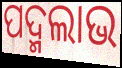
ପଦ୍ମଲାଭ